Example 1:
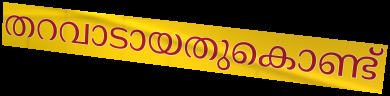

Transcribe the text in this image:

തറവാടായതുകൊണ്ട്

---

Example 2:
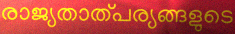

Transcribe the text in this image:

രാജ്യതാത്പര്യങ്ങളുടെ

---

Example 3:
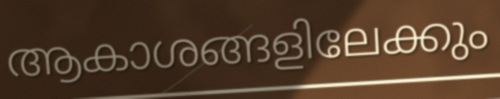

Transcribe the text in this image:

ആകാശങ്ങളിലേക്കും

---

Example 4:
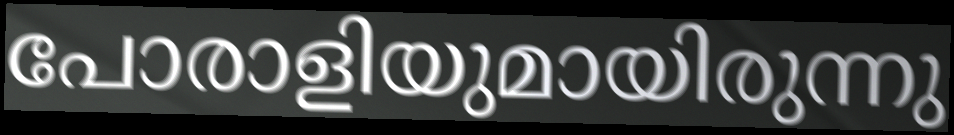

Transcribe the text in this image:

പോരാളിയുമായിരുന്നു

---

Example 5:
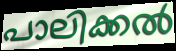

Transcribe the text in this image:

പാലിക്കൽ